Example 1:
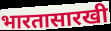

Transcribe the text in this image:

भारतासारखी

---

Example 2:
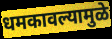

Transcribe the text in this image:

धमकावल्यामुळे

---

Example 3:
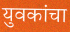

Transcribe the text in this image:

युवकांचा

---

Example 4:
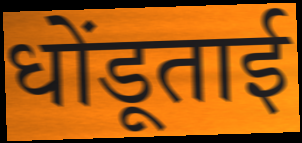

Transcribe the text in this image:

धोंडूताई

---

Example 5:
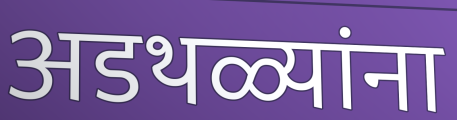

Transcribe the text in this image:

अडथळ्यांना